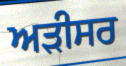
ਅੜੀਸਰ